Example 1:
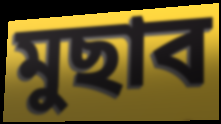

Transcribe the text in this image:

মুছাব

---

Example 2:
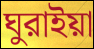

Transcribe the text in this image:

ঘুরাইয়া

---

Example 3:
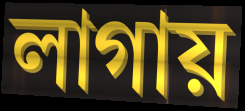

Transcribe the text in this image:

লাগায়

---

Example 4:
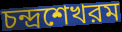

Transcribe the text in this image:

চন্দ্রশেখরম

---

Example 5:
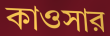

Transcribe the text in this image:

কাওসার